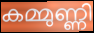
കമ്മുണ്ണി